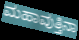
ಮಹಾವುತ್ತಿನಾ